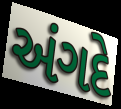
અંગદે